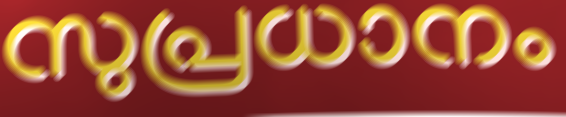
സുപ്രധാനം